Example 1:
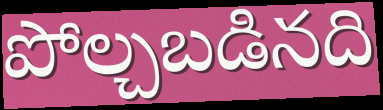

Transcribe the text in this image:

పోల్చబడినది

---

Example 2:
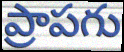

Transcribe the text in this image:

ప్రాపగు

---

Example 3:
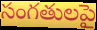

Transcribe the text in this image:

సంగతులపై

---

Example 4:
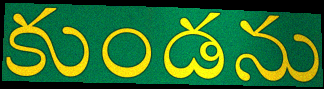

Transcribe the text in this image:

కుండను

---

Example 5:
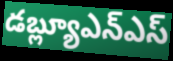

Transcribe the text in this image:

డబ్ల్యూఎన్ఎస్